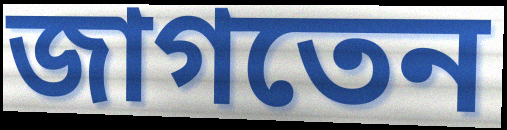
জাগতেন